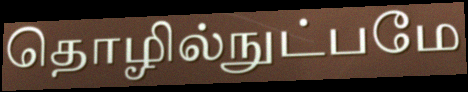
தொழில்நுட்பமே